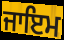
ਜਾਇਮ